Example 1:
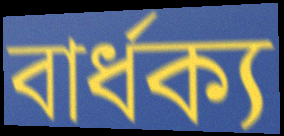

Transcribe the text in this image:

বার্ধক্য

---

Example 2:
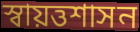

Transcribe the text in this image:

স্বায়ত্তশাসন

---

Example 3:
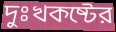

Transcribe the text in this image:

দুঃখকষ্টের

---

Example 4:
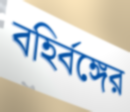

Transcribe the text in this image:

বহির্বঙ্গের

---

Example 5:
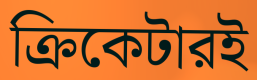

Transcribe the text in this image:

ক্রিকেটারই